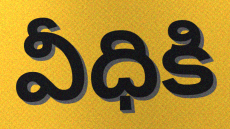
వీధికి